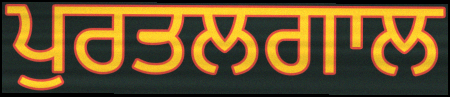
ਪੁਰਤਲਗਾਲ